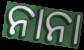
ନାନା